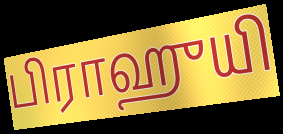
பிராஹுயி